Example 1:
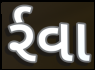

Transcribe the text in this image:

ર્રવા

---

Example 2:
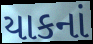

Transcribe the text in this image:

યાકનાં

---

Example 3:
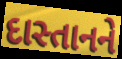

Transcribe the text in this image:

દાસ્તાનને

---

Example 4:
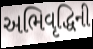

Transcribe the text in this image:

અભિવૃદ્ધિની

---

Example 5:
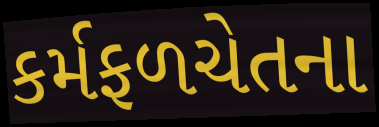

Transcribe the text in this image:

કર્મફળચેતના